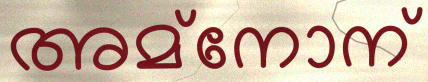
അമ്നോന്